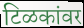
टिळकांवर